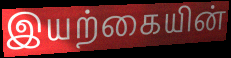
இயற்கையின்